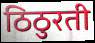
ठिठुरती